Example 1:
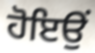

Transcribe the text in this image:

ਹੋਇਉਂ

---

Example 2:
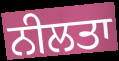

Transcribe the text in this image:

ਨੀਲਤਾ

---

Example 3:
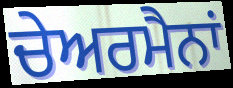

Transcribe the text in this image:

ਚੇਅਰਮੈਨਾਂ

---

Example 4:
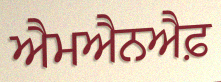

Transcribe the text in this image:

ਐਮਐਨਐਫ਼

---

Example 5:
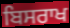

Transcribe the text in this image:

ਬਿਸਰਾਖ